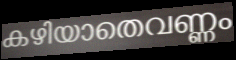
കഴിയാതെവണ്ണം